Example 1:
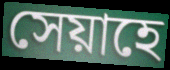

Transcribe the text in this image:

সেয়াহে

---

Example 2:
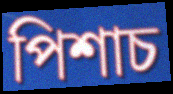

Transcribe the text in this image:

পিশাচ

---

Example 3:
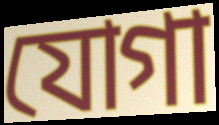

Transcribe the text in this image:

যোগা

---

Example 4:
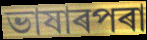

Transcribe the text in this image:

ভাষাৰপৰা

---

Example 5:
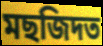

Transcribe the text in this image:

মছজিদত